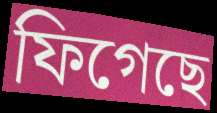
ফিগেছে